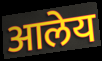
आलेय